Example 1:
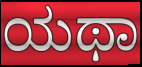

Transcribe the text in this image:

ಯಥಾ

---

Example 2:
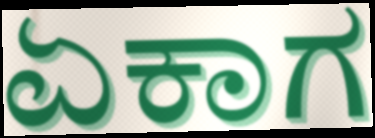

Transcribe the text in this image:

ಏಕಾಗ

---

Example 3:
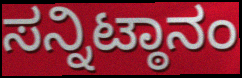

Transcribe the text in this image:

ಸನ್ನಿಟ್ಠಾನಂ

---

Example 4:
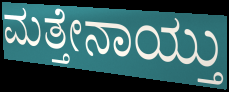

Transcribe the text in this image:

ಮತ್ತೇನಾಯ್ತು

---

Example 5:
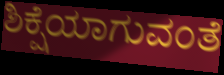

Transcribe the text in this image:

ಶಿಕ್ಷೆಯಾಗುವಂತೆ